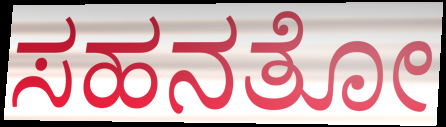
ಸಹನತೋ